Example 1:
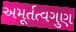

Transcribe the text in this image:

અમૂર્તત્વગુણ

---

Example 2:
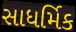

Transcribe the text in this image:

સાધર્મિક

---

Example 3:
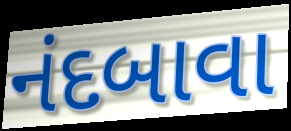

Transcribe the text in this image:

નંદબાવા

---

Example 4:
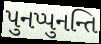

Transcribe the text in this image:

પુનપ્પુનન્તિ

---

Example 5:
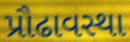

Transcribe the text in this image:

પ્રૌઢાવસ્થા